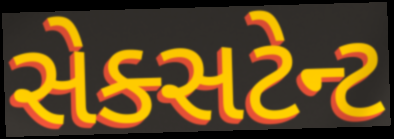
સેક્સટેન્ટ